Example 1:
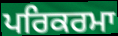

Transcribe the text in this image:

ਪਰਿਕਰਮਾ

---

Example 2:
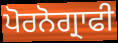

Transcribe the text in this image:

ਪੋਰਨੋਗ੍ਰਾਫੀ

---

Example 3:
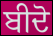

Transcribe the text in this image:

ਬੀਦੋ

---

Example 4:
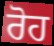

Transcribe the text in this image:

ਰੋਹ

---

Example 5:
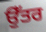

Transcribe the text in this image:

ਉੱਤਰ